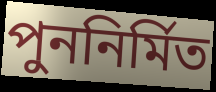
পুননির্মিত